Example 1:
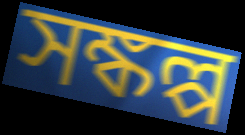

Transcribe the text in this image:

সঙ্কল্প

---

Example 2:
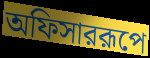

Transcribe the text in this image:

অফিসাররূপে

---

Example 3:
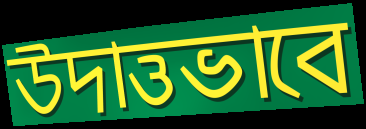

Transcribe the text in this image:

উদাত্তভাবে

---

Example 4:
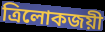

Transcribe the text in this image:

ত্রিলোকজয়ী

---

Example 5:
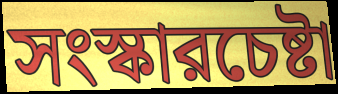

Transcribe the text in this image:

সংস্কারচেষ্টা